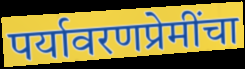
पर्यावरणप्रेमींचा